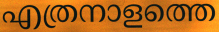
എത്രനാളത്തെ